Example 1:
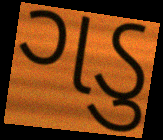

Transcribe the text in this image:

ગડુ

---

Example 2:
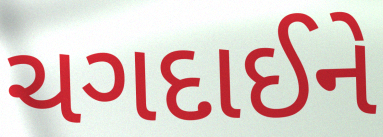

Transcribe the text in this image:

ચગદાઈને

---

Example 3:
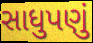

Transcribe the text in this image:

સાધુપણું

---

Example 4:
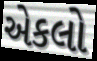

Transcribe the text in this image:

એકલો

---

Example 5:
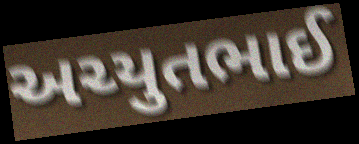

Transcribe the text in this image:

અચ્યુતભાઈ